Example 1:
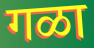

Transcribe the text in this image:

गळा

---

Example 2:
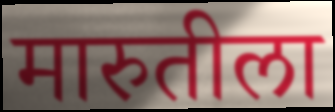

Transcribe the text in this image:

मारुतीला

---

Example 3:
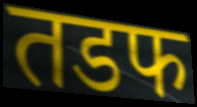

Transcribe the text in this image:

तडफ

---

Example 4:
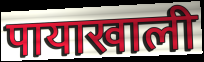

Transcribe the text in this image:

पायाखाली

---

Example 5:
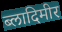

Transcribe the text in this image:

ब्लादिमीर